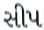
સીપ